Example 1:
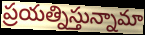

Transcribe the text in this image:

ప్రయత్నిస్తున్నామా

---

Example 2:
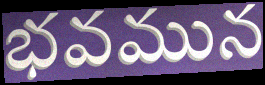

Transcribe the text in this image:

భవమున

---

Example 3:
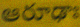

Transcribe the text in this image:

ఆరూఢాః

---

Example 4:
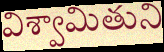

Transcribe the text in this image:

విశ్వామితుని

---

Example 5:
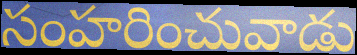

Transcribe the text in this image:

సంహరించువాడు